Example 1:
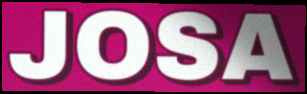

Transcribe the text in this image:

JOSA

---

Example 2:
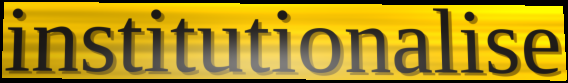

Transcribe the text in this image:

institutionalise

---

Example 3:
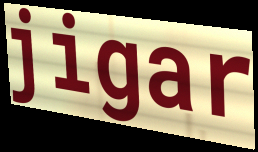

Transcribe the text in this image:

jigar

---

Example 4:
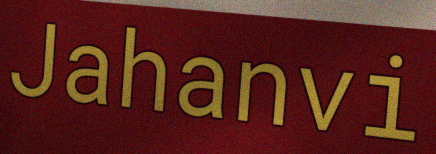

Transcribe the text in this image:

Jahanvi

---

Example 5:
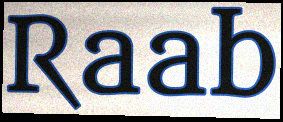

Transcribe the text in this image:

Raab